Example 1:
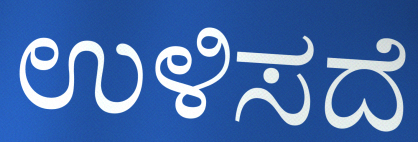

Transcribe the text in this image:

ಉಳಿಸದೆ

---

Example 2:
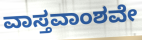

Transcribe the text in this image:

ವಾಸ್ತವಾಂಶವೇ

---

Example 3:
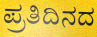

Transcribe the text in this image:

ಪ್ರತಿದಿನದ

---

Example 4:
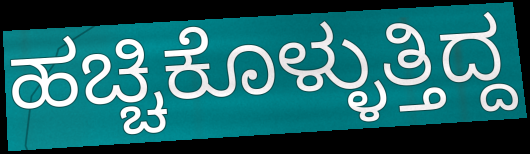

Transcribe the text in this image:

ಹಚ್ಚಿಕೊಳ್ಳುತ್ತಿದ್ದ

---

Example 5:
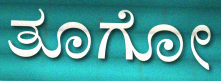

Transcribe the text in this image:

ತೂಗೋ